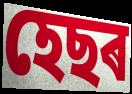
হেছৰ